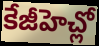
కేజీహెచ్లో